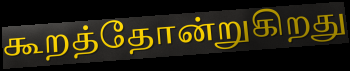
கூறத்தோன்றுகிறது